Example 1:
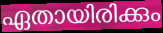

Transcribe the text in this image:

ഏതായിരിക്കും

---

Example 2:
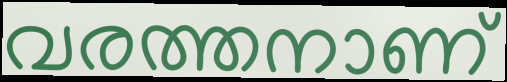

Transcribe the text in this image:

വരത്തനാണ്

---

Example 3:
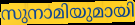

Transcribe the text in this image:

സുനാമിയുമായി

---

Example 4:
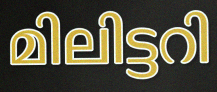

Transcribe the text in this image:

മിലിട്ടറി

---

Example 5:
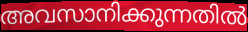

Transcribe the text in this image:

അവസാനിക്കുന്നതിൽ